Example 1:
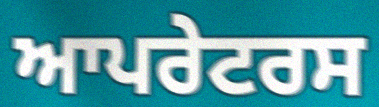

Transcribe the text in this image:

ਆਪਰੇਟਰਸ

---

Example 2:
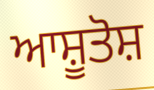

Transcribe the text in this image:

ਆਸ਼ੂਤੋਸ਼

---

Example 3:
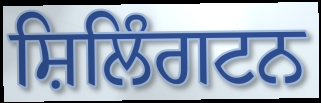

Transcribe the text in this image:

ਸ਼ਿਲਿੰਗਟਨ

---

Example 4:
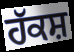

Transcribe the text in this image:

ਹੱਕਸ਼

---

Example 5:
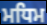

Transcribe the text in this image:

ਮਧਿਮ